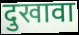
दुखावा